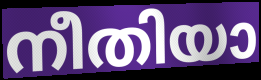
നീതിയാ